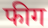
फीग